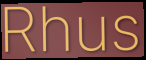
Rhus